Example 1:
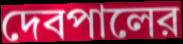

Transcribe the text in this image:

দেবপালের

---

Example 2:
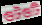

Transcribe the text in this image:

গুটগুটি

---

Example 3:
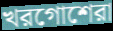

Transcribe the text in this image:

খরগোশেরা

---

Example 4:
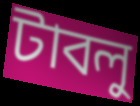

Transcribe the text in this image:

টাবলু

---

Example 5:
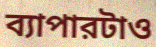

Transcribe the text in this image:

ব্যাপারটাও